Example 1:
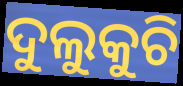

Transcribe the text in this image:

ଦୁଲୁକୁଚି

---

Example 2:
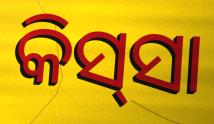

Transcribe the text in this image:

କିସ୍‍ସା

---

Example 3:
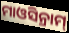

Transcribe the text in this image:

ମାଓସିନ୍ରାମ୍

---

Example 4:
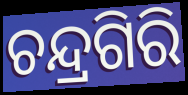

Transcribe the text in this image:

ଚନ୍ଦ୍ରଗିରି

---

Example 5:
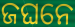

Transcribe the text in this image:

ଜଘନେ